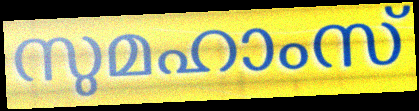
സുമഹാംസ്